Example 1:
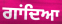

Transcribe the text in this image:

ਗਾਂਦਿਆ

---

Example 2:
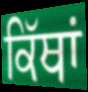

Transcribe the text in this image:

ਕਿੱਥਾਂ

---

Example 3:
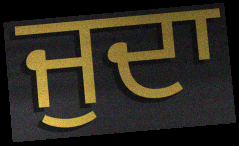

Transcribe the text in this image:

ਜੁਦਾ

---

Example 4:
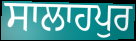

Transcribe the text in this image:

ਸਾਲਾਹਪੁਰ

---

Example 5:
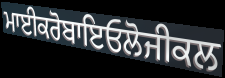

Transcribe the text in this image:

ਮਾਈਕਰੋਬਾਇਓਲੋਜੀਕਲ